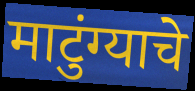
माटुंग्याचे